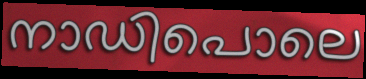
നാഡിപൊലെ